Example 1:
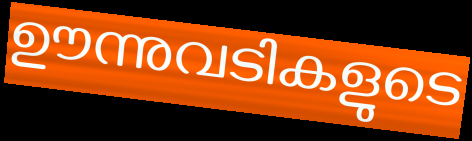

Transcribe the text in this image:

ഊന്നുവടികളുടെ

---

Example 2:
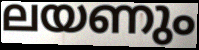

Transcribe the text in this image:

ലയണും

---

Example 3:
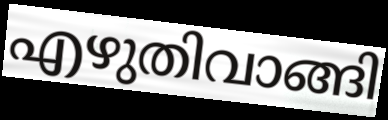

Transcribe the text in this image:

എഴുതിവാങ്ങി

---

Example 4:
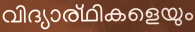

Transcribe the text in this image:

വിദ്യാര്ഥികളെയും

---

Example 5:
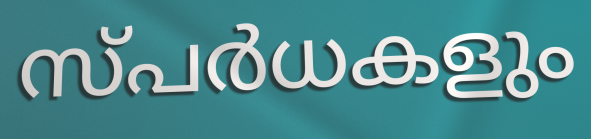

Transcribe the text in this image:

സ്പർധകളും